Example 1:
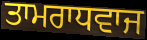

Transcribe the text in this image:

ਤਾਮਰਾਧਵਾਜ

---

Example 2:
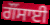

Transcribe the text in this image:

ਗੌਂਸਾਈ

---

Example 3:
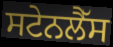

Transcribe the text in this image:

ਸਟੇਨਲੈੱਸ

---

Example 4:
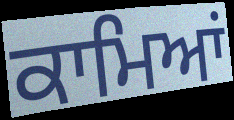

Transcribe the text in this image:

ਕਾਮਿਆਂ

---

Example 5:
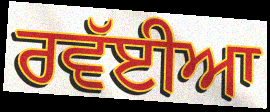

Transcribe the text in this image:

ਰਵੱਈਆ